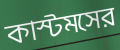
কাস্টমসের